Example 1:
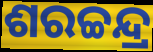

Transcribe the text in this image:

ଶରଚ୍ଚନ୍ଦ୍ର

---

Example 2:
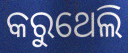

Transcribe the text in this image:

କରୁଥେଲି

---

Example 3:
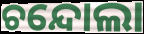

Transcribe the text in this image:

ଚନ୍ଦୋଲା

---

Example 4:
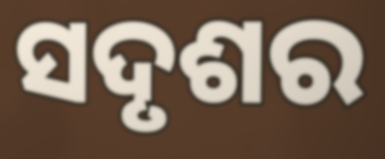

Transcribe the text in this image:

ସଦୃଶର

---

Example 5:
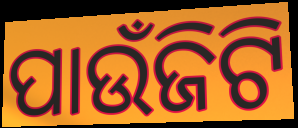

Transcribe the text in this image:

ପାଉଁଜିଟି